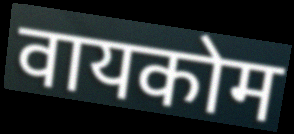
वायकोम